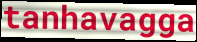
tanhavagga